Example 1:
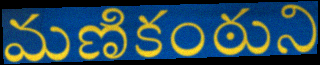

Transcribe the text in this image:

మణికంఠుని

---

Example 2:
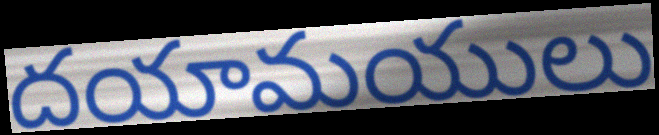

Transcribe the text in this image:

దయామయులు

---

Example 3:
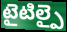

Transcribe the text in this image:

టైటిల్పై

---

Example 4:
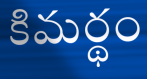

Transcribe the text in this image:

కిమర్థం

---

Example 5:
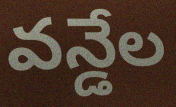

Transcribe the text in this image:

వన్డేల